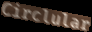
Circlular